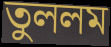
তুললম